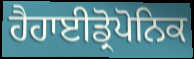
ਹੈਹਾਈਡ੍ਰੋਪੋਨਿਕ